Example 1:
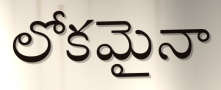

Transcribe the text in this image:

లోకమైనా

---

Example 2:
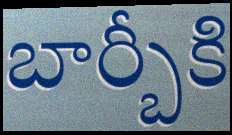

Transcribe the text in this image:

బార్బీకి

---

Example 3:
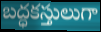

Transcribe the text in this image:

బద్ధకస్తులుగా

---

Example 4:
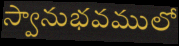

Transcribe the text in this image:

స్వానుభవములో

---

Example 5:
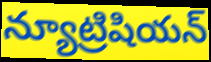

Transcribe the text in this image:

న్యూట్రిషియన్